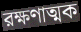
রক্ষণাত্মক